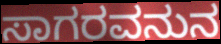
ಸಾಗರವನುನ